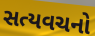
સત્યવચનો